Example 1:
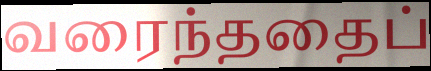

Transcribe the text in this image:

வரைந்ததைப்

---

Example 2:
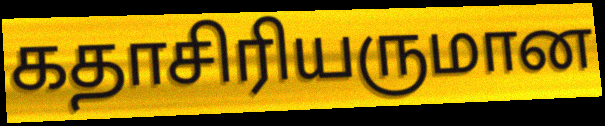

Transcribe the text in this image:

கதாசிரியருமான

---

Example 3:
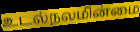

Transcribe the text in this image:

உடல்நலமின்மை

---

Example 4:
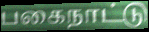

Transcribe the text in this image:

பகைநாட்டு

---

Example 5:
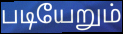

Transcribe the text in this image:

படியேறும்